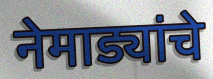
नेमाड्यांचे